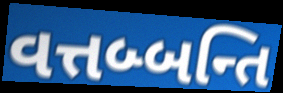
વત્તબ્બન્તિ